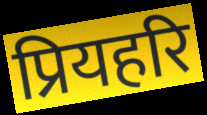
प्रियहरि